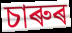
চাৰুৰ